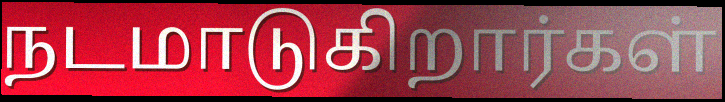
நடமாடுகிறார்கள்